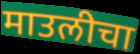
माउलीचा